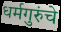
धर्मगुरुंचे